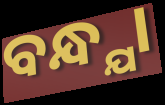
ବନ୍ଧ୍ଯା